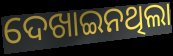
ଦେଖାଇନଥିଲା